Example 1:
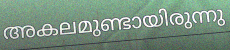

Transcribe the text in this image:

അകലമുണ്ടായിരുന്നു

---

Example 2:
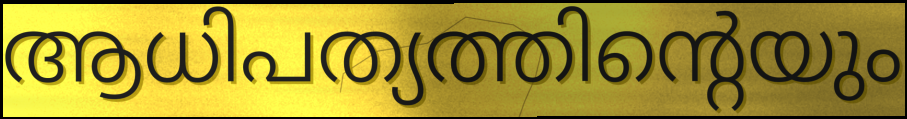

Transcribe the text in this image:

ആധിപത്യത്തിന്റെയും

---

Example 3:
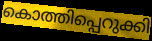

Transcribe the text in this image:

കൊത്തിപ്പെറുക്കി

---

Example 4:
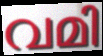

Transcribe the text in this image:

വമി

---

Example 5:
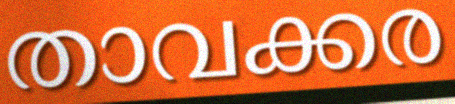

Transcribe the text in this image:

താവക്കര